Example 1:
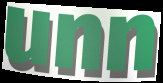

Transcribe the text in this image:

unn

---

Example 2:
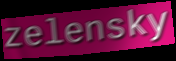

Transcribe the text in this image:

zelensky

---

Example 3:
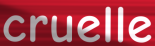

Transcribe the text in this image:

cruelle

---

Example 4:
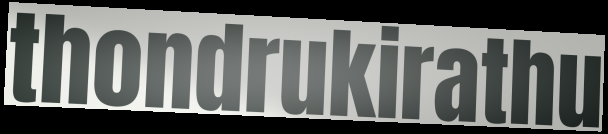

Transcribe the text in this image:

thondrukirathu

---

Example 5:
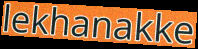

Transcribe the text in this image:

lekhanakke